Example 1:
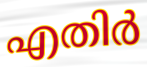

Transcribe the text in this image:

എതിർ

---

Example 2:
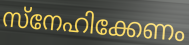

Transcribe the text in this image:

സ്നേഹിക്കേണം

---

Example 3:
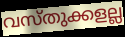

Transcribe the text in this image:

വസ്തുക്കളല്ല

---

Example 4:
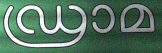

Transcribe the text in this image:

ഡ്രാമ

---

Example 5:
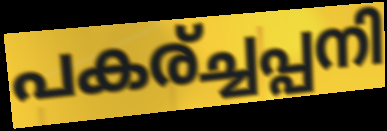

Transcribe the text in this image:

പകര്ച്ചപ്പനി